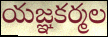
యజ్ఞకర్మల